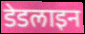
डेडलाइन